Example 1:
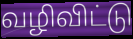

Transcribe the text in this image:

வழிவிட்டு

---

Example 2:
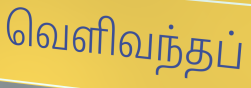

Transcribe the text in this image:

வெளிவந்தப்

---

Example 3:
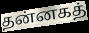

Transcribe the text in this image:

தன்னகத்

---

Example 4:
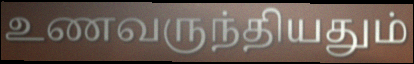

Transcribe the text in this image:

உணவருந்தியதும்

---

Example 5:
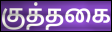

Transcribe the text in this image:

குத்தகை